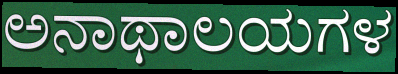
ಅನಾಥಾಲಯಗಳ